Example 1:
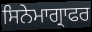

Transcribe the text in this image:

ਸਿਨੇਮਾਗ੍ਰਾਫਰ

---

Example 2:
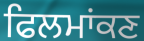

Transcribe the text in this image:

ਫਿਲਮਾਂਕਣ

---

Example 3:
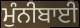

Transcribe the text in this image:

ਮੁੰਨੀਬਾਈ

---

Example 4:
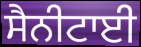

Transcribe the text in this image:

ਸੈਨੀਟਾਈ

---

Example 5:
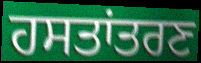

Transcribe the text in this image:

ਹਸਤਾਂਤਰਣ